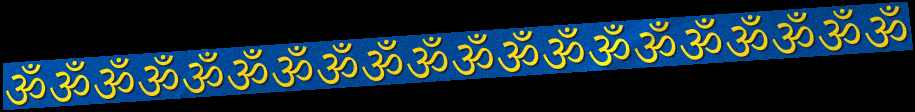
ॐॐॐॐॐॐॐॐॐॐॐॐॐॐॐॐॐॐॐॐ